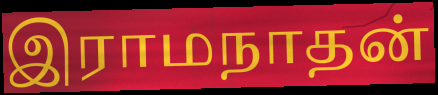
இராமநாதன்